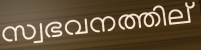
സ്വഭവനത്തില്